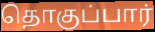
தொகுப்பார்